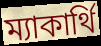
ম্যাকার্থি